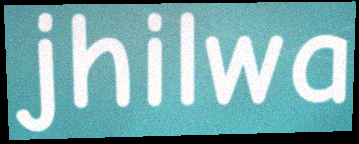
jhilwa